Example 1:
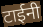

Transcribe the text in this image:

टाईनी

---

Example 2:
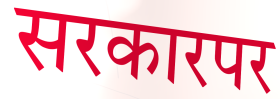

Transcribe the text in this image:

सरकारपर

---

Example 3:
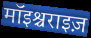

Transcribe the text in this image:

मॉइश्चराइज़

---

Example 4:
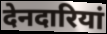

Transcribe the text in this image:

देनदारियां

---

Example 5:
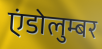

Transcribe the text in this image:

एंडोलुम्बर